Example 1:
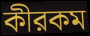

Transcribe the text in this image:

কীরকম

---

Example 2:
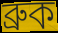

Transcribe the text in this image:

ব্রুক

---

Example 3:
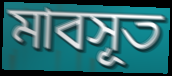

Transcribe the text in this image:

মাবসূত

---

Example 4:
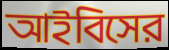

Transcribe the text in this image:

আইবিসের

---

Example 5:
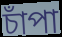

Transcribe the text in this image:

চাঁপা